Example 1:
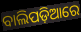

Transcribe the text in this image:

ବାଲିପଡ଼ିଆରେ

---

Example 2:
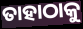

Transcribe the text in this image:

ତାହାଠାକୁ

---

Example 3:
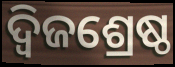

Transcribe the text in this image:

ଦ୍ୱିଜଶ୍ରେଷ୍ଠ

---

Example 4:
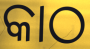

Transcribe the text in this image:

କାଠ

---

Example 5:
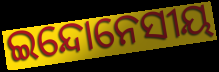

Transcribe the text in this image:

ଇନ୍ଦୋନେସୀୟ